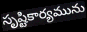
సృష్టికార్యమును